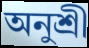
অনুশ্রী